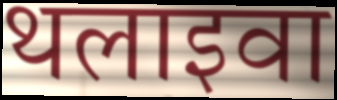
थलाइवा